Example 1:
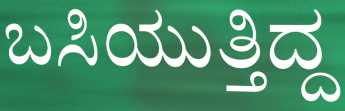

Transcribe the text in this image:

ಬಸಿಯುತ್ತಿದ್ದ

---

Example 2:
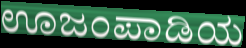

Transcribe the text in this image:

ಊಜಂಪಾಡಿಯ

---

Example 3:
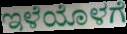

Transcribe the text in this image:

ಇಳೆಯೊಳಗೆ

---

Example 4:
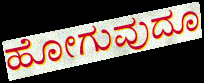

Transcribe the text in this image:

ಹೋಗುವುದೂ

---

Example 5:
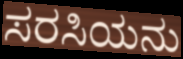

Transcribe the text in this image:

ಸರಸಿಯನು